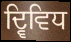
ਦ੍ਵਿਵਿਧ